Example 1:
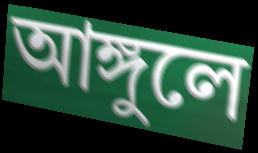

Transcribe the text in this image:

আঙ্গুলে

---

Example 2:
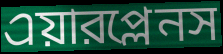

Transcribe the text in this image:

এয়ারপ্লেনস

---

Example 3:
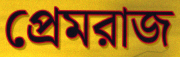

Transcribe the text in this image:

প্রেমরাজ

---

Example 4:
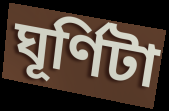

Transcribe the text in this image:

ঘূর্ণিটা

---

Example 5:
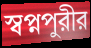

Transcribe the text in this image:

স্বপ্নপুরীর